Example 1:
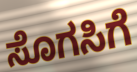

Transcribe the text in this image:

ಸೊಗಸಿಗೆ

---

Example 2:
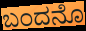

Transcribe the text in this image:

ಬಂದನೊ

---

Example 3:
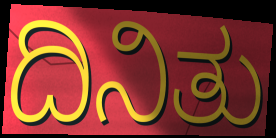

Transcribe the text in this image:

ದಿನಿತು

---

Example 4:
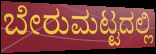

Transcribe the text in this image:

ಬೇರುಮಟ್ಟದಲ್ಲಿ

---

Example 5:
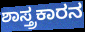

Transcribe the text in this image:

ಶಾಸ್ತ್ರಕಾರನ